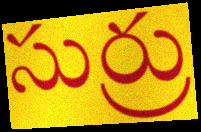
సుర్రు